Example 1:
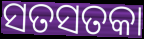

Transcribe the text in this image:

ସତସତକା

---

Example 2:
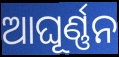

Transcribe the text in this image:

ଆଘୂର୍ଣ୍ଣନ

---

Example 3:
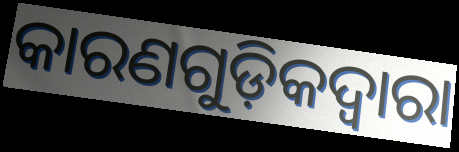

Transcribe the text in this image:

କାରଣଗୁଡ଼ିକଦ୍ବାରା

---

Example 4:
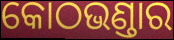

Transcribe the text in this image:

କୋଠଭଣ୍ଡାର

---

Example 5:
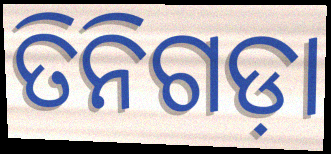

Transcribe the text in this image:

ତିନିଗଡ଼ା